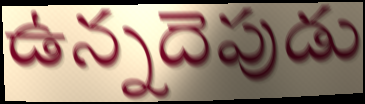
ఉన్నదెపుడు